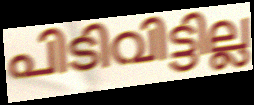
പിടിവിട്ടില്ല